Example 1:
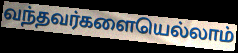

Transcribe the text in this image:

வந்தவர்களையெல்லாம்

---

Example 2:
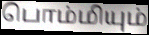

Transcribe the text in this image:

பொம்மியும்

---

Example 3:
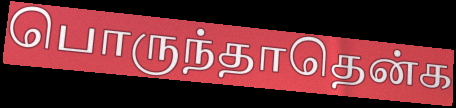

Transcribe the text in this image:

பொருந்தாதென்க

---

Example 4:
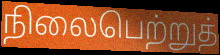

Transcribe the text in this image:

நிலைபெற்றுத்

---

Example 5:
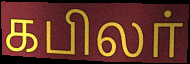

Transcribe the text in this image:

கபிலர்